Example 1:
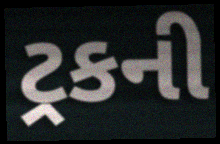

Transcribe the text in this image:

ટ્રકની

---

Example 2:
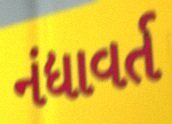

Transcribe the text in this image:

નંદ્યાવર્ત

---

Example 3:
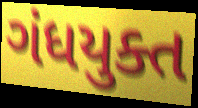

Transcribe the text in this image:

ગંધયુક્ત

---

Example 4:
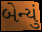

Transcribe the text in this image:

બેન્યું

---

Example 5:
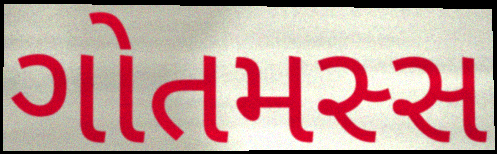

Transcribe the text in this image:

ગોતમસ્સ